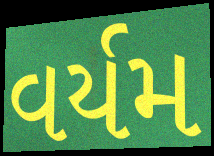
વર્યમ